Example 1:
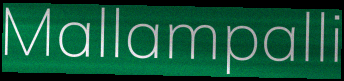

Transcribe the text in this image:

Mallampalli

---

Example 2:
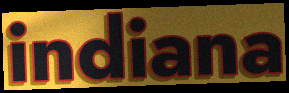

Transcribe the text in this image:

indiana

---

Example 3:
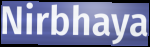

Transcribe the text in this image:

Nirbhaya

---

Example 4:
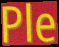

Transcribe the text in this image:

Ple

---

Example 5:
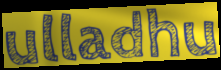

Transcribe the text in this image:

ulladhu